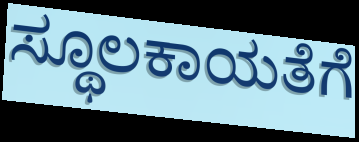
ಸ್ಥೂಲಕಾಯತೆಗೆ